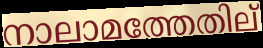
നാലാമത്തേതില്